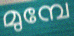
മുമ്പേ